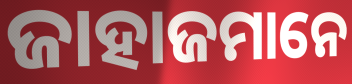
ଜାହାଜମାନେ